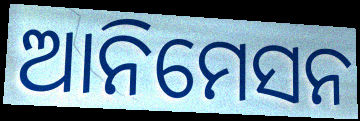
ଆନିମେସନ